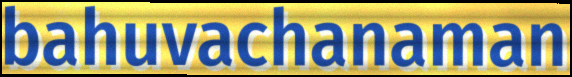
bahuvachanaman